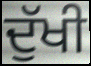
ਦੁੱਖੀ